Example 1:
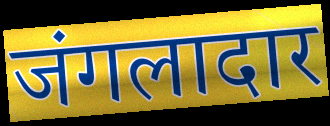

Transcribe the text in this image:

जंगलादार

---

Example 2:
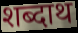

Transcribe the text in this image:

शब्दाथ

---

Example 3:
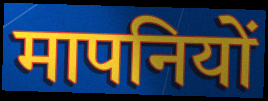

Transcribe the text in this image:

मापनियों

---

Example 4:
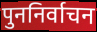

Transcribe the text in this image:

पुननिर्वाचन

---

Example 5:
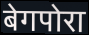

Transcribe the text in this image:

बेगपोरा